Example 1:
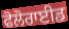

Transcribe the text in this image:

ਫੋਲੋਰਾਈਡ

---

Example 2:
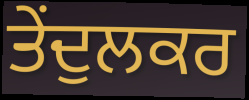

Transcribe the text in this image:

ਤੇਂਦੁਲਕਰ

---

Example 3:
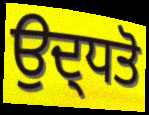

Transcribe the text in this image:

ਉਦ੍ਧਤੋ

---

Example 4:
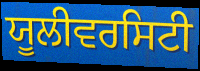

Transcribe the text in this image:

ਯੂਲੀਵਰਸਿਟੀ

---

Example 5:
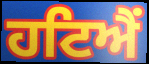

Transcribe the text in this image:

ਹਟਿਐਂ